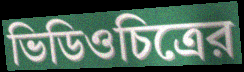
ভিডিওচিত্রের